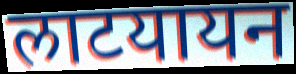
लाटयायन